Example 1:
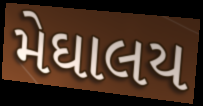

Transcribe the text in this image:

મેઘાલય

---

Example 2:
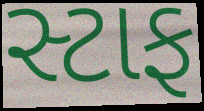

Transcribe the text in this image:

સ્ટાફ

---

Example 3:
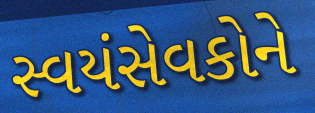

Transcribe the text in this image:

સ્વયંસેવકોને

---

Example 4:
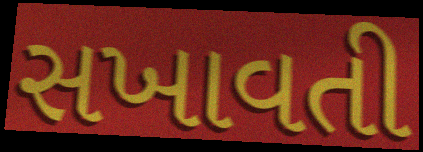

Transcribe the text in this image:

સખાવતી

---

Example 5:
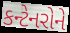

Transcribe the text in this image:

કન્ટેનરોને